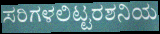
ಸರಿಗಳಲಿಟ್ಟರಶನಿಯ